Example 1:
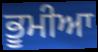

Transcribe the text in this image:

ਭੂਮੀਆ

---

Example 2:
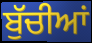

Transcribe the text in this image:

ਬੁੱਚੀਆਂ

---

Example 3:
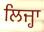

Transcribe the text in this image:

ਲਿਜ੍ਹਾ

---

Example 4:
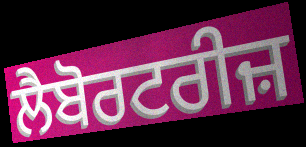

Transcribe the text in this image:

ਲੈਬੋਰਟਰੀਜ਼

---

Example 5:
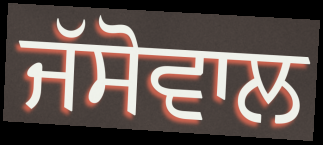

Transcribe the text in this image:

ਜੱਸੋਵਾਲ